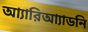
আ্যারিআ্যাডনি